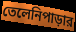
তেলেনিপাড়ার